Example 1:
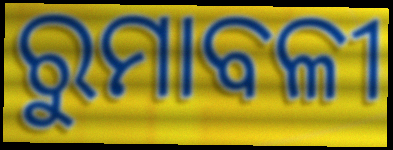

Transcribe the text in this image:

ରୁମାବଳୀ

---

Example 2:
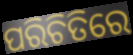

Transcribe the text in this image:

ପରିଚିତିରେ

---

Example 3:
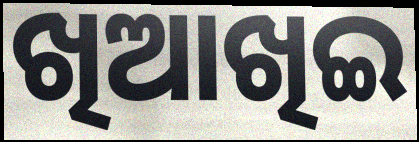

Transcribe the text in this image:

ଖିଆଖିଇ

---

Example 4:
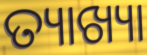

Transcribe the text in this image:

ତ୍ୟାଖ୍ୟା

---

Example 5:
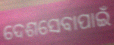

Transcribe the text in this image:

ଦେଶସେବାପାଇଁ